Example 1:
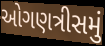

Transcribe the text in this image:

ઓગણત્રીસમું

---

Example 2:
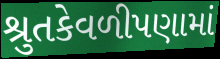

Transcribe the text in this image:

શ્રુતકેવળીપણામાં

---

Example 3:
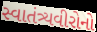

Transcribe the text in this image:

સ્વાતંત્ર્યવીરોનો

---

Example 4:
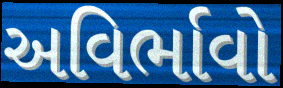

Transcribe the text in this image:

અવિર્ભાવો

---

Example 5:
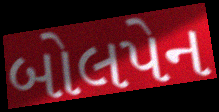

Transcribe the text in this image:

બોલપેન